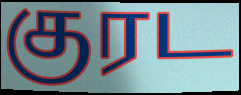
குரட